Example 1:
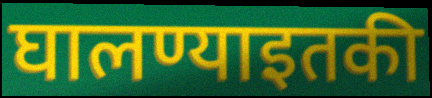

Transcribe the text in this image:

घालण्याइतकी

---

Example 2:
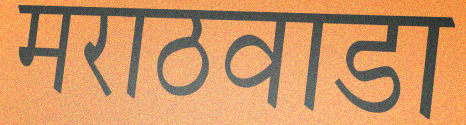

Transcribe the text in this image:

मराठवाडा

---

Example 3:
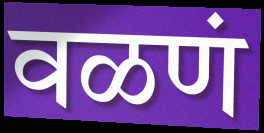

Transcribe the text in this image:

वळणं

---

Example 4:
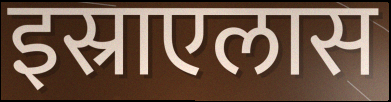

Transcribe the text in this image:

इस्राएलास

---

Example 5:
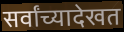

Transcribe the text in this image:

सर्वांच्यादेखत